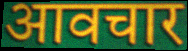
आवचार